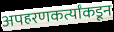
अपहरणकर्त्यांकडून